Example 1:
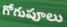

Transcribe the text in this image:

గోగుపూలు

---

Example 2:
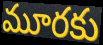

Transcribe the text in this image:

మూరకు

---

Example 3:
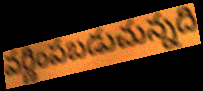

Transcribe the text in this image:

వర్ణింపబడుచున్నది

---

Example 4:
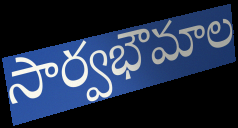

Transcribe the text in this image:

సార్వభౌమాల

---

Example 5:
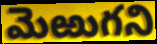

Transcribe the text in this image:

మెఱుగని